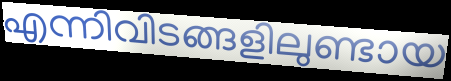
എന്നിവിടങ്ങളിലുണ്ടായ